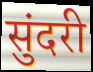
सुंदरी